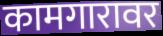
कामगारावर